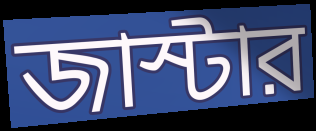
জাস্টার